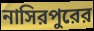
নাসিরপুরের